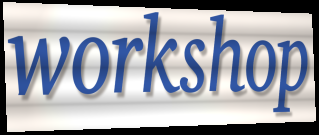
workshop